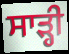
ਸਾੜ੍ਹੀ